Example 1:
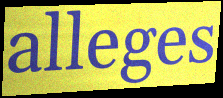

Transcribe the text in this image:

alleges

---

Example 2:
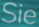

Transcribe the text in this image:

Sie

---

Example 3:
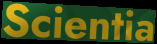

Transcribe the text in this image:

Scientia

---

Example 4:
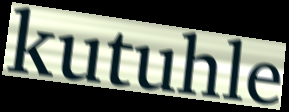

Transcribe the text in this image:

kutuhle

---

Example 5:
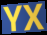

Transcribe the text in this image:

YX